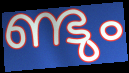
ണ്ടും